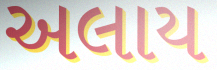
અલાય